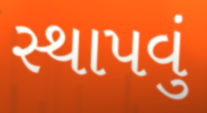
સ્થાપવું